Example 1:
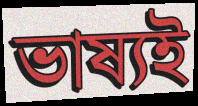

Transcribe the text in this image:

ভাষ্যই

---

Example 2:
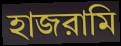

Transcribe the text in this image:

হাজরামি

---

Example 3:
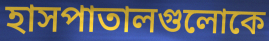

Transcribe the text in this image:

হাসপাতালগুলোকে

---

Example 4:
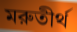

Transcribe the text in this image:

মরুতীর্থ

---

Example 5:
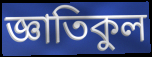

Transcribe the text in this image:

জ্ঞাতিকুল